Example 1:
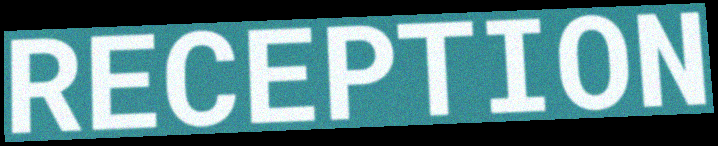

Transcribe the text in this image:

RECEPTION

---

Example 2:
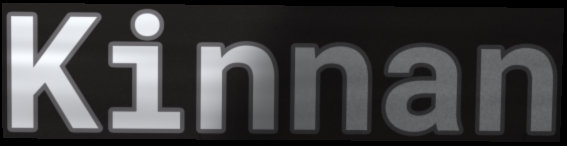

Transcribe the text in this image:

Kinnan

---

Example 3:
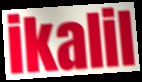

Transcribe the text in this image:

ikalil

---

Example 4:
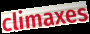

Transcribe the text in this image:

climaxes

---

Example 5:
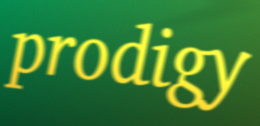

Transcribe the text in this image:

prodigy